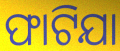
ଫାଟିଯା